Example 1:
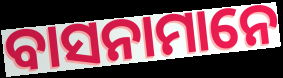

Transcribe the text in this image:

ବାସନାମାନେ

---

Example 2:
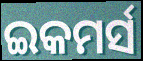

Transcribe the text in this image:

ଇକମର୍ସ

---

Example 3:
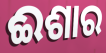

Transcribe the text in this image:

ଈଶାର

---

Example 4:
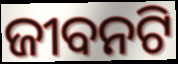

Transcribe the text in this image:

ଜୀବନଟି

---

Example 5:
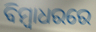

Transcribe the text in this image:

ବିମ୍ୱାଧରରେ